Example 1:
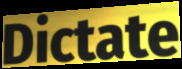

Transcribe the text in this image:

Dictate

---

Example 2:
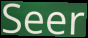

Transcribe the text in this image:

Seer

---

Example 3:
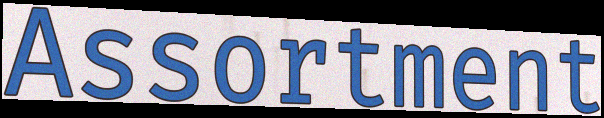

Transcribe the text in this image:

Assortment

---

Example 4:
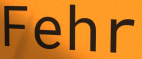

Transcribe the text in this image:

Fehr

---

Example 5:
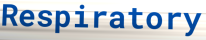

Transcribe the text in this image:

Respiratory